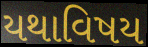
યથાવિષય